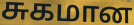
சுகமான